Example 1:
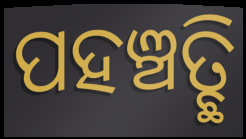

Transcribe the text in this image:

ପହଞ୍ଚତ୍ଛି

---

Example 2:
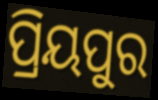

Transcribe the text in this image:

ପ୍ରିୟପୁର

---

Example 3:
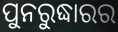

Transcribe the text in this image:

ପୁନରୁଦ୍ଧାରର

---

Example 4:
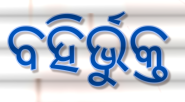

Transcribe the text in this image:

ବହିର୍ଭୁକ୍ତ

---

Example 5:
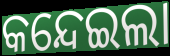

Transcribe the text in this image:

କନ୍ଦେଇଲା